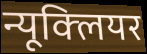
न्‍यूक्‍लियर